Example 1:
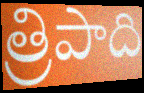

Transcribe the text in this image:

త్రిపాది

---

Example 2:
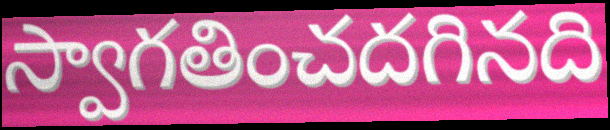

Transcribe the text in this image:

స్వాగతించదగినది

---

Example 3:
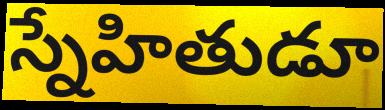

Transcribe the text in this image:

స్నేహితుడూ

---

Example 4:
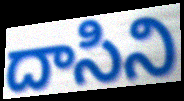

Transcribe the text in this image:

దాసిని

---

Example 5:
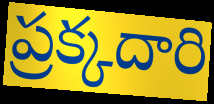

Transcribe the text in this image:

ప్రక్కదారి